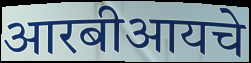
आरबीआयचे